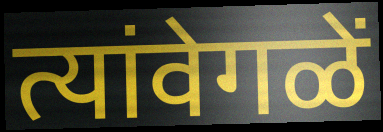
त्यांवेगळें